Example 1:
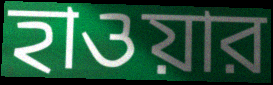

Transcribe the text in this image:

হাওয়ার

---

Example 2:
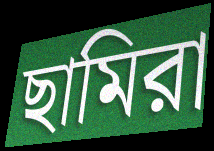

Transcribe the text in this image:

ছামিরা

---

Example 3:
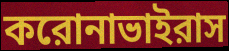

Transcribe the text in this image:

করোনাভাইরাস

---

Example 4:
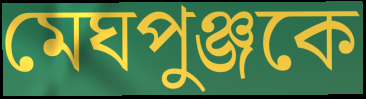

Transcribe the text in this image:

মেঘপুঞ্জকে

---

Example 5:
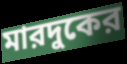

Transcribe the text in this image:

মারদুকের